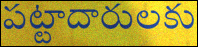
పట్టాదారులకు